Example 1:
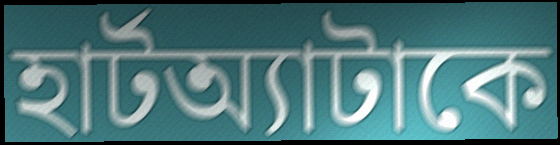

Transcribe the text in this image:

হার্টঅ্যাটাকে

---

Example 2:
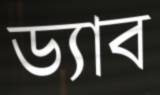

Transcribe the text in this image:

ড্যাব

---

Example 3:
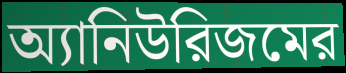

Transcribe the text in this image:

অ্যানিউরিজমের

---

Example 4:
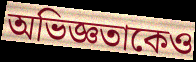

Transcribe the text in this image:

অভিজ্ঞতাকেও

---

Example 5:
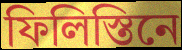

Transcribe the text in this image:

ফিলিস্তিনে